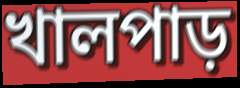
খালপাড়